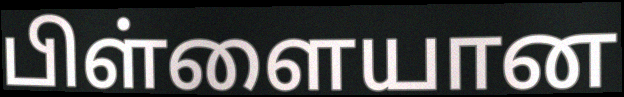
பிள்ளையான